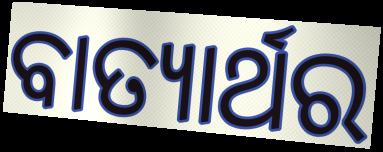
ବାତ୍ୟାର୍ଥର